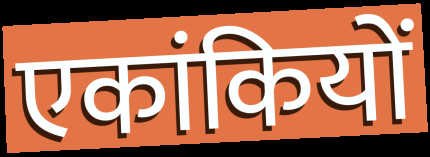
एकांकियों